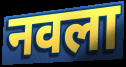
नवला